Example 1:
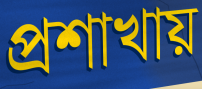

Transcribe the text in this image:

প্রশাখায়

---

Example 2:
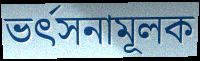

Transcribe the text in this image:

ভর্ৎসনামূলক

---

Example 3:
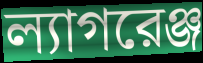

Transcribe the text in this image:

ল্যাগরেঞ্জ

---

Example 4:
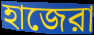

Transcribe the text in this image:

হাজেরা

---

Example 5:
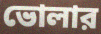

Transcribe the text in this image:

ভোলার